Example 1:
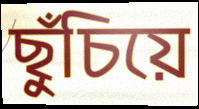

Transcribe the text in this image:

ছুঁচিয়ে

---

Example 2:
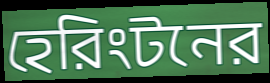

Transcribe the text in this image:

হেরিংটনের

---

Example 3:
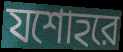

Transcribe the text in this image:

যশোহরে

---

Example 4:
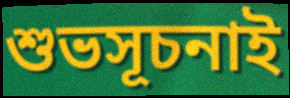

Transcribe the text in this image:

শুভসূচনাই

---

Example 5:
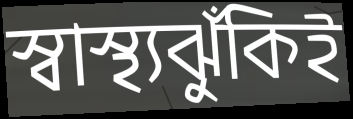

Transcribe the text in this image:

স্বাস্থ্যঝুঁকিই